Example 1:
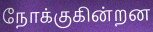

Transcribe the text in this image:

நோக்குகின்றன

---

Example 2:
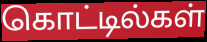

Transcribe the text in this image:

கொட்டில்கள்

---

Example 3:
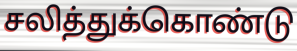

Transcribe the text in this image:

சலித்துக்கொண்டு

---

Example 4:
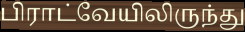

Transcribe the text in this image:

பிராட்வேயிலிருந்து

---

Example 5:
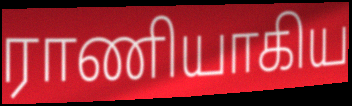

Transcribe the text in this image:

ராணியாகிய